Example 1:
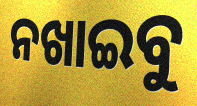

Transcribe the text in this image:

ନଖାଇବୁ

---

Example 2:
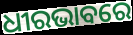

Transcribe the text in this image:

ଧୀରଭାବରେ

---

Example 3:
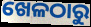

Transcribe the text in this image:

ଖେଳଠାରୁ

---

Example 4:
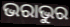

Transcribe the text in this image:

ଭରାଭୁର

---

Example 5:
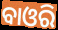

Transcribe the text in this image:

ବାଓରି